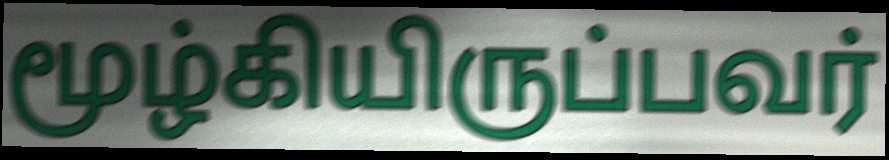
மூழ்கியிருப்பவர்